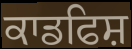
ਕਾਡਫਿਸ਼